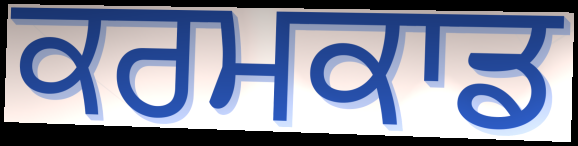
ਕਰਮਕਾਡ